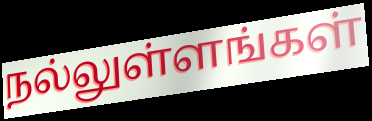
நல்லுள்ளங்கள்